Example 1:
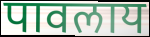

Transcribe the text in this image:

पावलाय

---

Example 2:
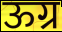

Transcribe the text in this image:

ऊग्र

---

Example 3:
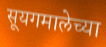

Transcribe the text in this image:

सूयगमालेच्या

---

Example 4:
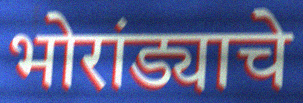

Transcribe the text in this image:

भोरांड्याचे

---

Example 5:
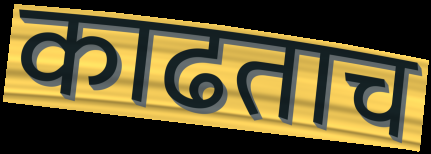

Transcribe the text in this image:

काढताच